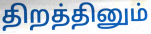
திறத்தினும்